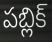
పబ్లిక్